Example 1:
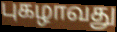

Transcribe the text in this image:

புகழாவது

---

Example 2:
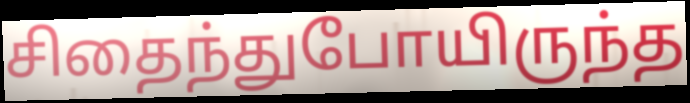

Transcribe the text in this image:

சிதைந்துபோயிருந்த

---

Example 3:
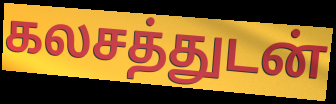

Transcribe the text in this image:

கலசத்துடன்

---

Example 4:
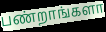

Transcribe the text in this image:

பண்றாங்களா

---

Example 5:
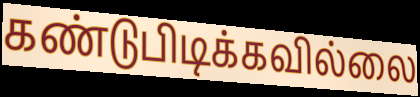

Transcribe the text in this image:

கண்டுபிடிக்கவில்லை